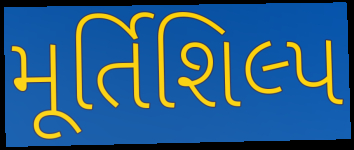
મૂર્તિશિલ્પ